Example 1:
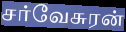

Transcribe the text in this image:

சர்வேசுரன்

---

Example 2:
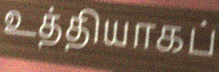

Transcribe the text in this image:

உத்தியாகப்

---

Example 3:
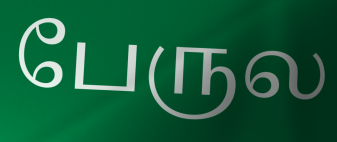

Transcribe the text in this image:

பேருல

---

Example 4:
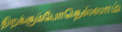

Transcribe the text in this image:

திறக்கும்போதெல்லாம்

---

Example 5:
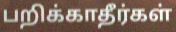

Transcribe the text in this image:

பறிக்காதீர்கள்